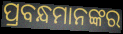
ପ୍ରବନ୍ଧମାନଙ୍କର